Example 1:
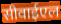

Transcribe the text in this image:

सीवाईएल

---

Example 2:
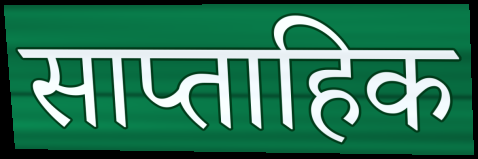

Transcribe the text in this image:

साप्ताहिक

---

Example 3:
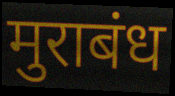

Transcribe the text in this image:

मुराबंध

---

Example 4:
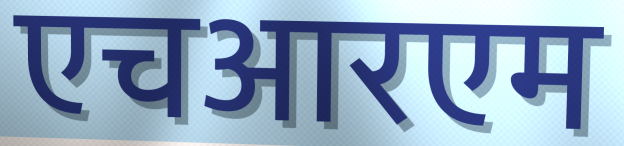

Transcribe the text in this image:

एचआरएम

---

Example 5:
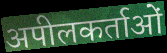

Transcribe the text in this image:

अपीलकर्ताओं